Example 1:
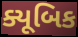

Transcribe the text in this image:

ક્યૂબિક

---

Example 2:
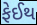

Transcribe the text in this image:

ફેઈથ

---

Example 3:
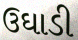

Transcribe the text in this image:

ઉઘાડી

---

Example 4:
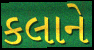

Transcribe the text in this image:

કલાને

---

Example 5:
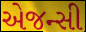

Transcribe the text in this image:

એજન્સી